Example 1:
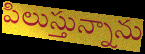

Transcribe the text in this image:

పిలుస్తున్నాను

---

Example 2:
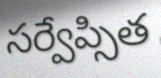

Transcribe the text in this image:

సర్వేప్సిత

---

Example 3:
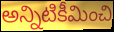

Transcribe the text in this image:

అన్నిటికీమించి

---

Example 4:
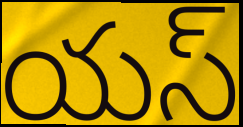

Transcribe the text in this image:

యస్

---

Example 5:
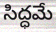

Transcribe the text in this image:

సిద్ధమే